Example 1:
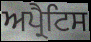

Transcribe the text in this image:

ਅਪ੍ਰੈਟਿਸ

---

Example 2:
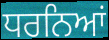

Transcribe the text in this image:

ਧਰਨਿਆਂ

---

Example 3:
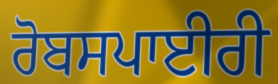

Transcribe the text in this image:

ਰੋਬਸਪਾਈਰੀ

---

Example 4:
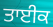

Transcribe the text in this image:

ਤਾਈਕ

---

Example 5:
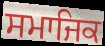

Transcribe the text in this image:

ਸਮਾਜਿਕ